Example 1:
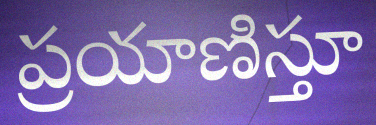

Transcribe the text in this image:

ప్రయాణిస్తూ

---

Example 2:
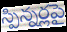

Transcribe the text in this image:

స్పిన్నర్లపై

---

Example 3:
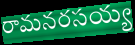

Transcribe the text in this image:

రామనరసయ్య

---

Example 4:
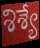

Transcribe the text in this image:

శిశ్యే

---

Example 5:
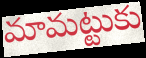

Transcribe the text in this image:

మామట్టుకు